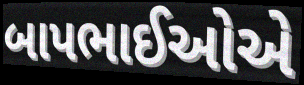
બાપભાઈઓએ